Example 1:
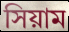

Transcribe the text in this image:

সিয়াম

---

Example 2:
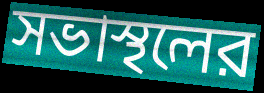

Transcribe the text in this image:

সভাস্থলের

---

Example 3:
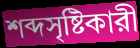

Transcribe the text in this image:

শব্দসৃষ্টিকারী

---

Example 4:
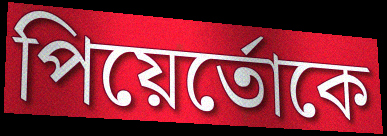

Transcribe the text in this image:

পিয়ের্তোকে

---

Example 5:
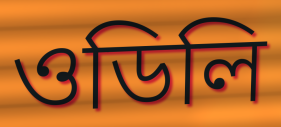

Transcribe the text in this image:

ওডিলি